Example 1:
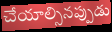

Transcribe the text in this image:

చేయాల్సినప్పుడు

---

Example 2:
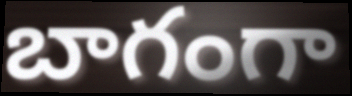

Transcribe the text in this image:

బాగంగా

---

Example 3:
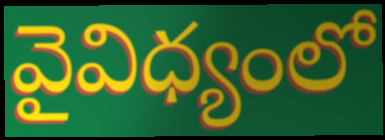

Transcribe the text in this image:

వైవిధ్యంలో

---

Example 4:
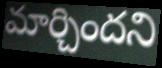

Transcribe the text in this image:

మార్చిందని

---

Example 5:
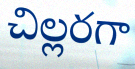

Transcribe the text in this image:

చిల్లరగా